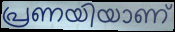
പ്രണയിയാണ്